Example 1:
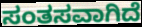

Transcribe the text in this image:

ಸಂತಸವಾಗಿದೆ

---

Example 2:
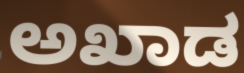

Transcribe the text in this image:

ಅಖಾಡ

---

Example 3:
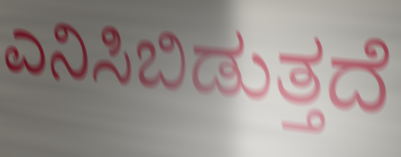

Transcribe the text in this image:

ಎನಿಸಿಬಿಡುತ್ತದೆ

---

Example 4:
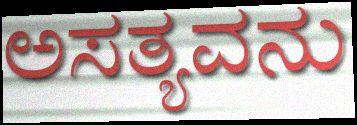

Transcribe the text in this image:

ಅಸತ್ಯವನು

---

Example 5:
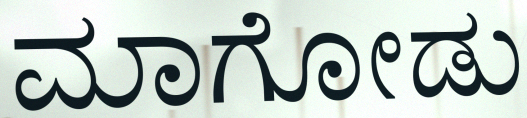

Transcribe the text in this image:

ಮಾಗೋಡು